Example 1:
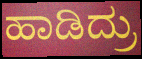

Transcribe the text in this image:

ಹಾಡಿದ್ರು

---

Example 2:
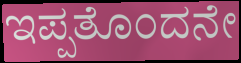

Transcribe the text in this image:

ಇಪ್ಪತೊಂದನೇ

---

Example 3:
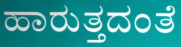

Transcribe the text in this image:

ಹಾರುತ್ತದಂತೆ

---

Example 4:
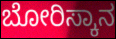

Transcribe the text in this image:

ಬೋರಿಸ್ಕಾನ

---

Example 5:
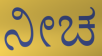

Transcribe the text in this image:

ನೀಚ